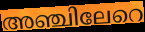
അഞ്ചിലേറെ